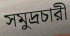
সমুদ্রচারী